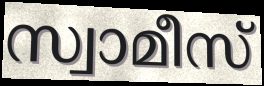
സ്വാമീസ്